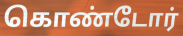
கொண்டோர்